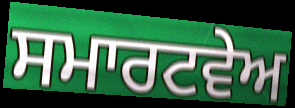
ਸਮਾਰਟਵੇਅ